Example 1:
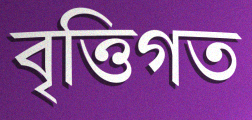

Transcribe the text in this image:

বৃত্তিগত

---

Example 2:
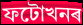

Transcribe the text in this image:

ফটোখনৰ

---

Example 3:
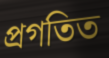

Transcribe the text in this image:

প্ৰগতিত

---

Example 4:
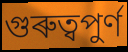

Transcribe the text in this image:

গুৰুত্বপুৰ্ণ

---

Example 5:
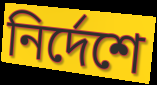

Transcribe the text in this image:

নিৰ্দেশে